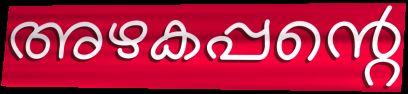
അഴകപ്പന്റെ